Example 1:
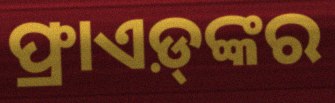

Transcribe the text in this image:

ଫ୍ରାଏଡ଼୍‍ଙ୍କର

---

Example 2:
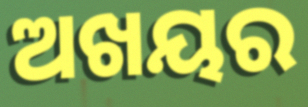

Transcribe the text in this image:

ଅଖୟର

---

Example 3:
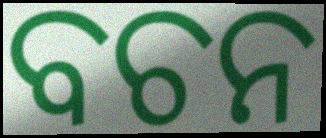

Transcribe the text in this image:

ବଚନ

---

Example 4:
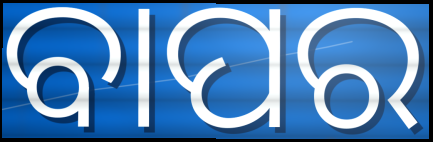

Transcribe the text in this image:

ବାପର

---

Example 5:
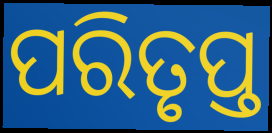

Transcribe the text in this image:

ପରିତୃପ୍ତ